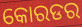
କୋରଡର